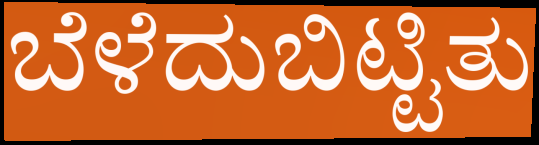
ಬೆಳೆದುಬಿಟ್ಟಿತು